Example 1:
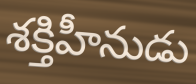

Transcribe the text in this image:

శక్తిహీనుడు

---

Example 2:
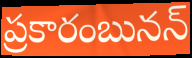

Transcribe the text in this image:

ప్రకారంబునన్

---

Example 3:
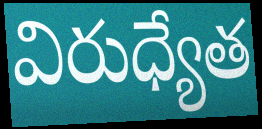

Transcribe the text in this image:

విరుధ్యేత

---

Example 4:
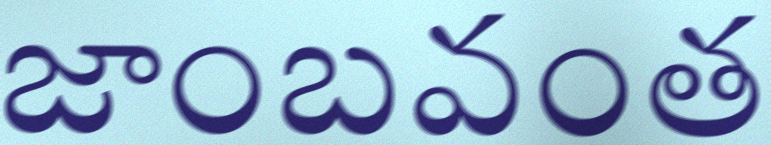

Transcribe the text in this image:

జాంబవంత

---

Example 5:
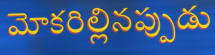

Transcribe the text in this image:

మోకరిల్లినప్పుడు